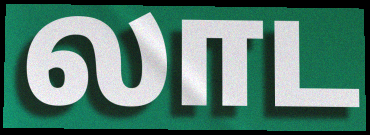
லாட